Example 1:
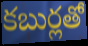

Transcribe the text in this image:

కబుర్లతో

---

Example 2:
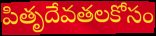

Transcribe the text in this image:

పితృదేవతలకోసం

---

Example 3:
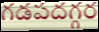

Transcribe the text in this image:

గడపదగ్గర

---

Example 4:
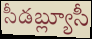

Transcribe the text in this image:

సీడబ్ల్యూసీ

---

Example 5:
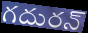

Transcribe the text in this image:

గదురన్